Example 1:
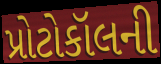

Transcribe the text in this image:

પ્રોટોકૉલની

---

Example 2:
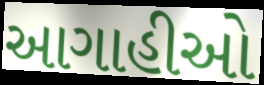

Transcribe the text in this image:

આગાહીઓ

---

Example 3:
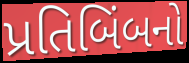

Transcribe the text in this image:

પ્રતિબિંબનો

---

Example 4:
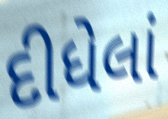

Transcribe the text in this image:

દીધેલાં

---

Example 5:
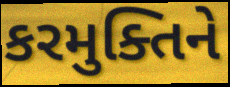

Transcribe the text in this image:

કરમુક્તિને